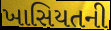
ખાસિયતની